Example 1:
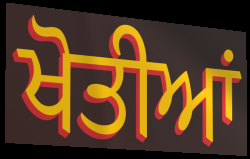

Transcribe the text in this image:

ਖੋਤੀਆਂ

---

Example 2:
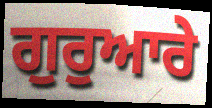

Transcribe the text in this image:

ਗੁਰੁਆਰੇ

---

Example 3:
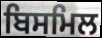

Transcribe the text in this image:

ਬਿਸਮਿਲ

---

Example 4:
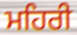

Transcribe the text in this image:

ਮਹਿਰੀ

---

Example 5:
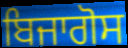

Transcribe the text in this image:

ਬਿਜਾਗੋਸ